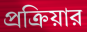
প্রক্রিয়ার